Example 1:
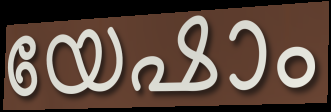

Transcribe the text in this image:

യേഷാം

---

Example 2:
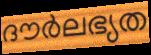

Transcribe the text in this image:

ദൗർലഭ്യത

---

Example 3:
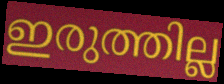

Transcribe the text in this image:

ഇരുത്തില്ല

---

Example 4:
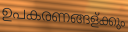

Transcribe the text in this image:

ഉപകരണങ്ങള്ക്കും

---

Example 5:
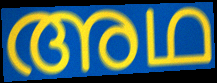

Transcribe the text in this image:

അഥ